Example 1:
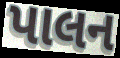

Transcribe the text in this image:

પાલન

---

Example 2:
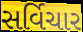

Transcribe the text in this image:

સર્વિચાર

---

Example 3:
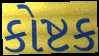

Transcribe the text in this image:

કોષ્ટક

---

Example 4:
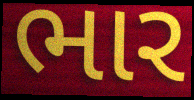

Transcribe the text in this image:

ભાર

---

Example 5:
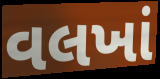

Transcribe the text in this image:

વલખાં